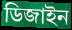
ডিজাইন